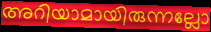
അറിയാമായിരുന്നല്ലോ